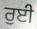
ਰੁਈ